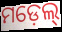
ମଡ଼େଲ୍